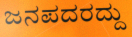
ಜನಪದರದ್ದು